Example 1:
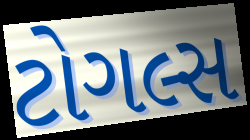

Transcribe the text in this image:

ટોગલ્સ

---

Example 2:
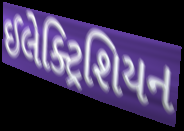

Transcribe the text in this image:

ઈલેક્ટ્રિશિયન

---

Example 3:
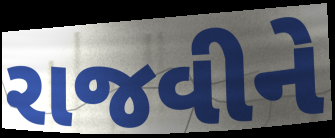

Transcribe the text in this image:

રાજવીને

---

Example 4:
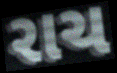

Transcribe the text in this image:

રાચ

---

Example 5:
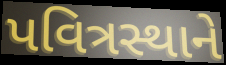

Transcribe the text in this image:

પવિત્રસ્થાને